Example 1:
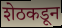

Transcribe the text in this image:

शेठकडून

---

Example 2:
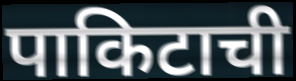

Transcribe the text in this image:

पाकिटाची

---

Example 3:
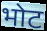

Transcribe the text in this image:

भोट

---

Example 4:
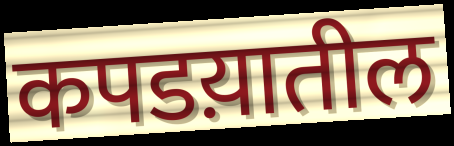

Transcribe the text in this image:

कपडय़ातील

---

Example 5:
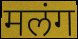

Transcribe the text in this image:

मलंग